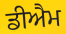
ਡੀਐਮ